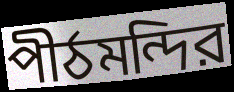
পীঠমন্দির